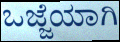
ಒಜ್ಜೆಯಾಗಿ